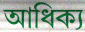
আধিক্য